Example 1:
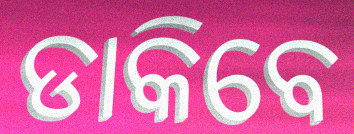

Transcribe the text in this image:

ଡାକିବେ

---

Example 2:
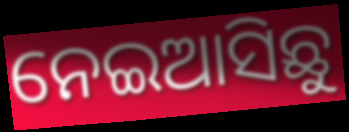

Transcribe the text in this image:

ନେଇଆସିଛୁ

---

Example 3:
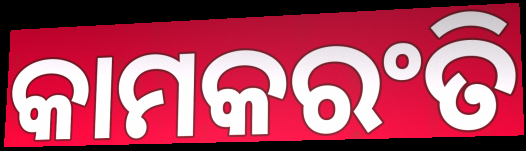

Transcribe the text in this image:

କାମକରଂତି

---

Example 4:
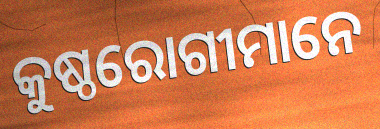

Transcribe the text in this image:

କୁଷ୍ଠରୋଗୀମାନେ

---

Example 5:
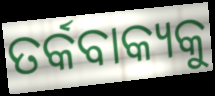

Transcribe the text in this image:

ତର୍କବାକ୍ୟକୁ